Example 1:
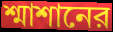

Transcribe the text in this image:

শ্মাশানের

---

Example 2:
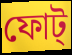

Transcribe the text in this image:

ফোট্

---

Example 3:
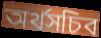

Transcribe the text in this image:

অর্থসচিব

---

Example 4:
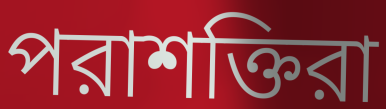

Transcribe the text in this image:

পরাশক্তিরা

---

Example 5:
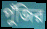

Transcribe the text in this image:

পুঁজির